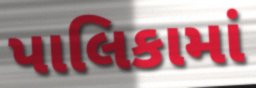
પાલિકામાં